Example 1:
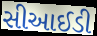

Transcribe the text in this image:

સીઆઈડી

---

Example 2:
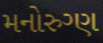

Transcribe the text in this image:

મનોરુગ્ણ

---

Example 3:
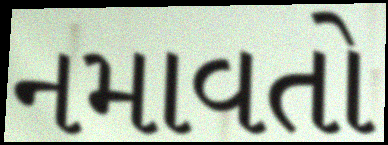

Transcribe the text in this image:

નમાવતો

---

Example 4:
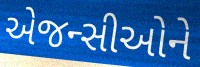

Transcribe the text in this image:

એજન્સીઓને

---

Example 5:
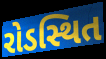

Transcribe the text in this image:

રોડસ્થિત